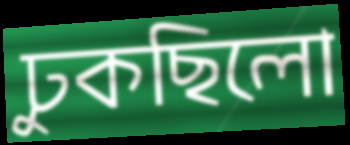
ঢুকছিলো